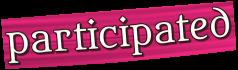
participated